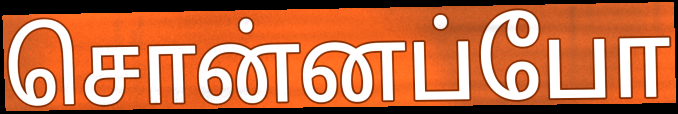
சொன்னப்போ